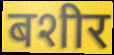
बशीर